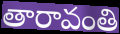
తారావంతి